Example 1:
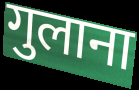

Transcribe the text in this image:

गुलाना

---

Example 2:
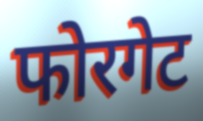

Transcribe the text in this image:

फोरगेट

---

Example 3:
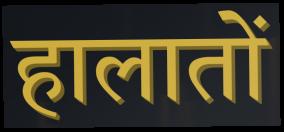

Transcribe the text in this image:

हालातों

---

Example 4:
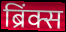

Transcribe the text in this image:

ब्रिंक्स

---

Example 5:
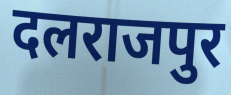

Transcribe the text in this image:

दलराजपुर